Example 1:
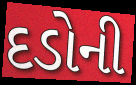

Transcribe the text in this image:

દડોની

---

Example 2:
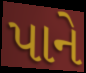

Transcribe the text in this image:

પાને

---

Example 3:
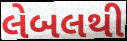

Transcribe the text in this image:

લેબલથી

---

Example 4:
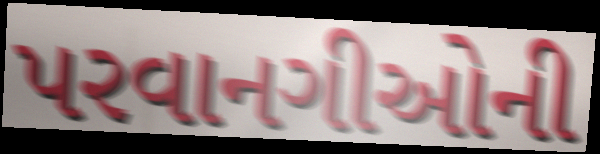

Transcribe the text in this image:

પરવાનગીઓની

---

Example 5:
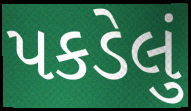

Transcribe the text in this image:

પકડેલું